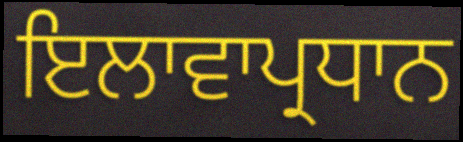
ਇਲਾਵਾਪ੍ਰਧਾਨ